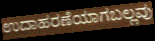
ಉದಾಹರಣೆಯಾಗಬಲ್ಲವು